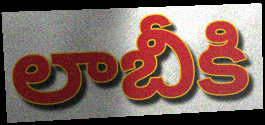
లాబీకి